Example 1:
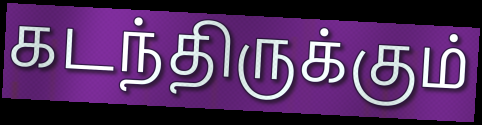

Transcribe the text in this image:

கடந்திருக்கும்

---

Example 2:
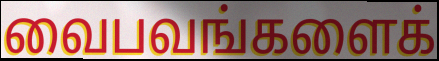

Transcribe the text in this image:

வைபவங்களைக்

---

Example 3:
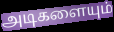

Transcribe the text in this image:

அடிகளையும்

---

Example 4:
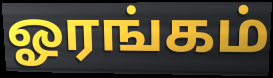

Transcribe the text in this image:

ஓரங்கம்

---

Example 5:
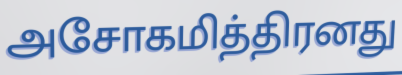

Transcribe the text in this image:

அசோகமித்திரனது